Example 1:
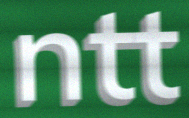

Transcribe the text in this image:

ntt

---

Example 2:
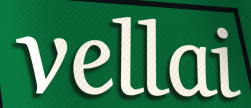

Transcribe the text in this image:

vellai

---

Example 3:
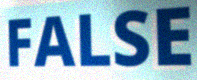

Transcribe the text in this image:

FALSE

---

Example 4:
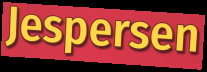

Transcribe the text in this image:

Jespersen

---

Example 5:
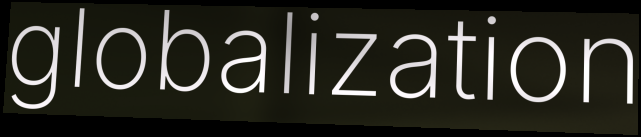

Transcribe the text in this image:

globalization